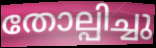
തോല്പിച്ചു